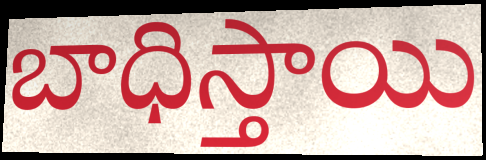
బాధిస్తాయి